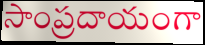
సాంప్రదాయంగా